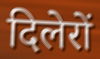
दिलेरों